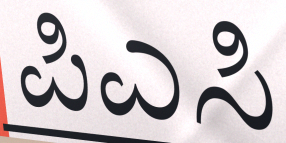
ಪಿಎಸಿ